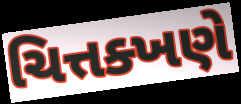
ચિત્તક્ખણે